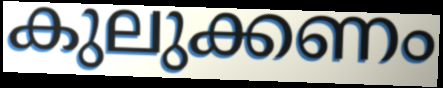
കുലുക്കണം